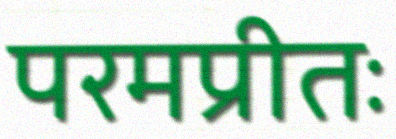
परमप्रीतः